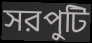
সরপুটি